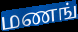
மணங்